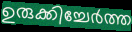
ഉരുക്കിച്ചേർത്ത